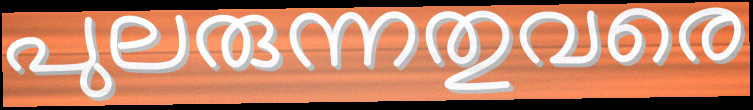
പുലരുന്നതുവരെ